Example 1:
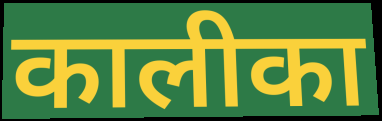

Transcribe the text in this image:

कालीका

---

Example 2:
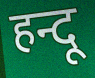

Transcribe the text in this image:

हन्दू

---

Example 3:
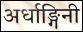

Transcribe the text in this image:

अर्धाङ्गिनी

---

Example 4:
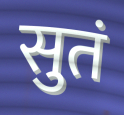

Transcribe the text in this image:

सुतं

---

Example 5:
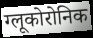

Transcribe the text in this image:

ग्लूकोरोनिक